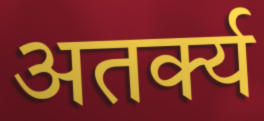
अतर्क्‍य